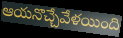
ఆయనొచ్చేవేళయింది